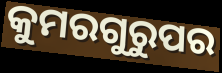
କୁମରଗୁରୁପର